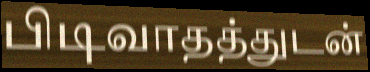
பிடிவாதத்துடன்